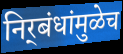
निर्बंधांमुळेच